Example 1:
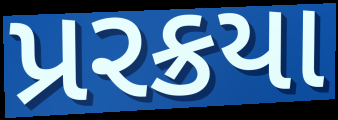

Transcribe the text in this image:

પ્રરક્રયા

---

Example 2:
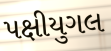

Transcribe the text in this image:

પક્ષીયુગલ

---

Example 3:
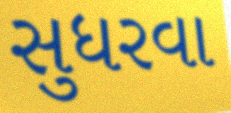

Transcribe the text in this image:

સુધરવા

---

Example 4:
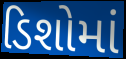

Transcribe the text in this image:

ડિશોમાં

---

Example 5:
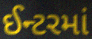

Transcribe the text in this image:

ઈન્ટરમાં